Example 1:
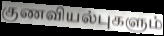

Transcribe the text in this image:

குணவியல்புகளும்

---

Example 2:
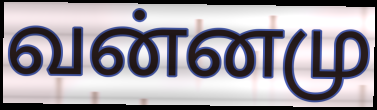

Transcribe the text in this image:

வன்னமு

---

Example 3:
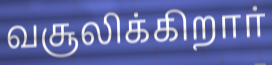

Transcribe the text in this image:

வசூலிக்கிறார்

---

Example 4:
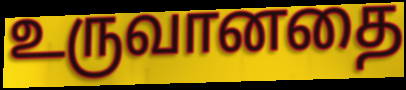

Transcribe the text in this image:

உருவானதை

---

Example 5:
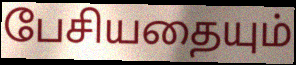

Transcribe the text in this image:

பேசியதையும்